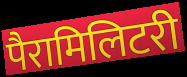
पैरामिलिटरी